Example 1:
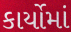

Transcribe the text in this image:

કાર્યોમાં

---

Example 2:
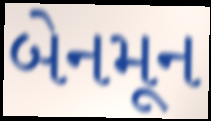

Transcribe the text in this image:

બેનમૂન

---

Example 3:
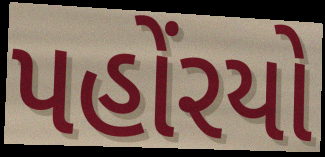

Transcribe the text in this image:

પહોંરયો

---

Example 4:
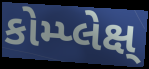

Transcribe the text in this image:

કોમ્પ્લેક્ષ્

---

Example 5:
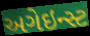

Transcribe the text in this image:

અગેઇન્સ્ટ